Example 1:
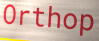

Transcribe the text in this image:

Orthop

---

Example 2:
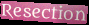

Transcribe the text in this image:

Resection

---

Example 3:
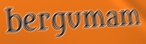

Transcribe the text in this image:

bergumam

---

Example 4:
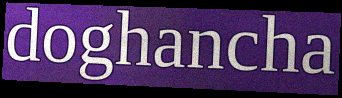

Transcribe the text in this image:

doghancha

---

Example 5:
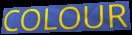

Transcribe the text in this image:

COLOUR